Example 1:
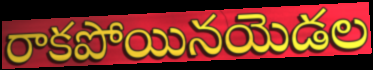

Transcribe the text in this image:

రాకపోయినయెడల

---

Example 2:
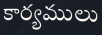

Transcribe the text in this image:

కార్యములు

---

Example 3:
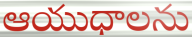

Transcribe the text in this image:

ఆయుధాలను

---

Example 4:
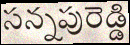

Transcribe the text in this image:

సన్నపురెడ్డి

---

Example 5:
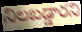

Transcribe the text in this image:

నిలబడ్డారని